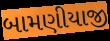
બામણીયાજી